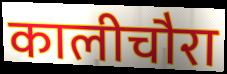
कालीचौरा